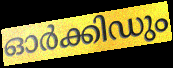
ഓർക്കിഡും